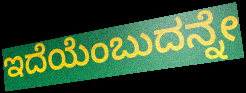
ಇದೆಯೆಂಬುದನ್ನೇ